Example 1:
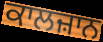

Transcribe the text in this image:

ਕਾਲਜ਼ਾਨ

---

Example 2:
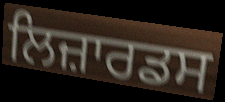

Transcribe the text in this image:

ਲਿਜ਼ਾਰਡਸ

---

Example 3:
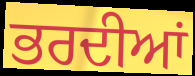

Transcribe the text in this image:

ਭਰਦੀਆਂ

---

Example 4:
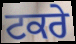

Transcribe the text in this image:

ਟਕਰੇ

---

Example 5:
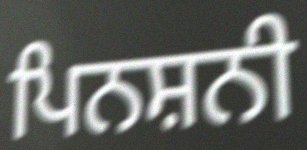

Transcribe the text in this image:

ਪਿਨਸ਼ਨੀ